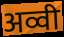
अव्वी